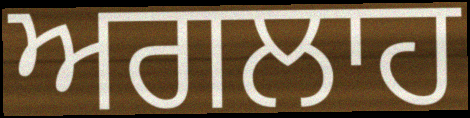
ਅਗਲਾਹ